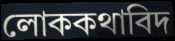
লোককথাবিদ